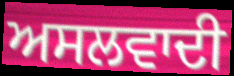
ਅਸਲਵਾਦੀ